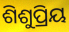
ଶିଶୁପ୍ରିୟ